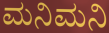
ಮನಿಮನಿ